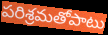
పరిశ్రమతోపాటు